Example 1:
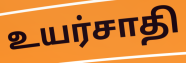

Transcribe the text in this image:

உயர்சாதி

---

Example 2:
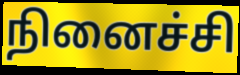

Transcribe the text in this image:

நினைச்சி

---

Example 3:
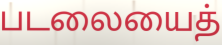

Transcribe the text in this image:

படலையைத்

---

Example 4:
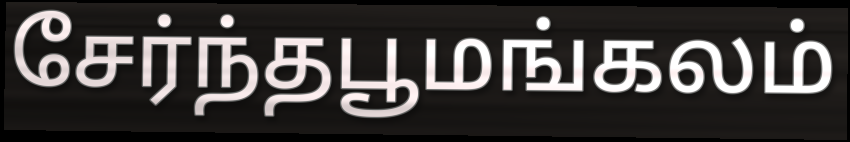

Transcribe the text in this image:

சேர்ந்தபூமங்கலம்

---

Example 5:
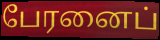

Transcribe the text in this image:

பேரனைப்